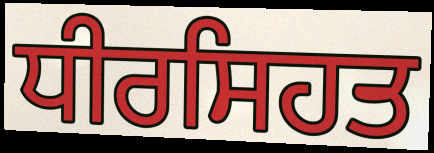
ਧੀਰਸਿਹਤ